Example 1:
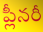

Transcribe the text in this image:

ప్లీనరీ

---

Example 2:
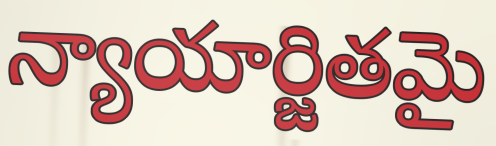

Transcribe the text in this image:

న్యాయార్జితమై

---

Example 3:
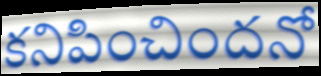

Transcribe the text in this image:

కనిపించిందనో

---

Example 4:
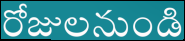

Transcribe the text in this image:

రోజులనుండి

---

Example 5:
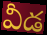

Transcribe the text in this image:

వీడ